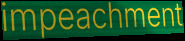
impeachment